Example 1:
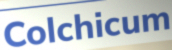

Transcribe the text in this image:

Colchicum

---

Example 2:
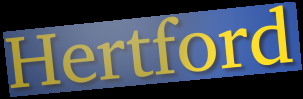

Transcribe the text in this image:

Hertford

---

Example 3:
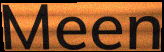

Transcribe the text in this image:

Meen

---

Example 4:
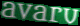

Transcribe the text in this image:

avaru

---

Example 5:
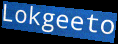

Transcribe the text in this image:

Lokgeeto